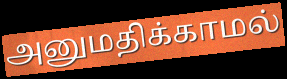
அனுமதிக்காமல்